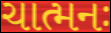
ચાત્મનઃ